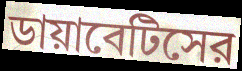
ডায়াবেটিসের